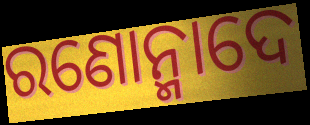
ରଣୋନ୍ମାଦେ